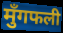
मुँगफली